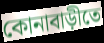
কোনাবাড়ীতে